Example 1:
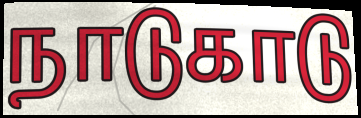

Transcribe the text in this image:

நாடுகாடு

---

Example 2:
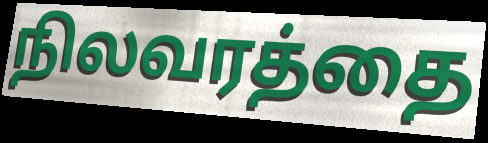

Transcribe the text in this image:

நிலவரத்தை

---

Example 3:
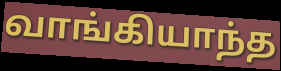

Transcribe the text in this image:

வாங்கியாந்த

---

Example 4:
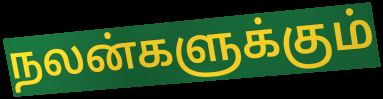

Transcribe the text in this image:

நலன்களுக்கும்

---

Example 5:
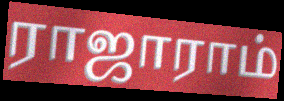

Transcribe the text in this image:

ராஜாராம்